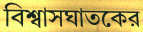
বিশ্বাসঘাতকের